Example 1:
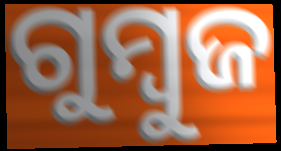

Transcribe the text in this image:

ଗୁମ୍ବୁଜ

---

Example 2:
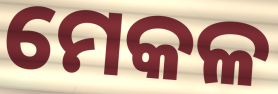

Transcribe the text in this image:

ମେକଳ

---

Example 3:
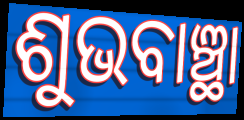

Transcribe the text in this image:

ଶୁଭବାଞ୍ଛା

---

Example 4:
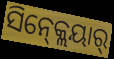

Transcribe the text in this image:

ସିନ୍କ୍ଲେୟାର୍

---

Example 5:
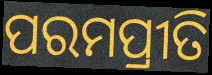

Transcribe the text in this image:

ପରମପ୍ରୀତି